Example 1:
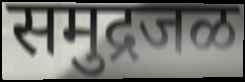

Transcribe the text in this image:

समुद्रजळ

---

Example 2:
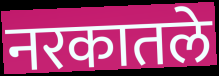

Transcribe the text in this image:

नरकातले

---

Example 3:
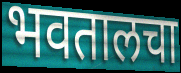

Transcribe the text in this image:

भवतालचा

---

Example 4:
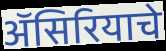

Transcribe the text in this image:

ॲसिरियाचे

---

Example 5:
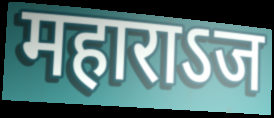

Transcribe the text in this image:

महाराऽज